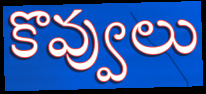
కొవ్వులు